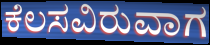
ಕೆಲಸವಿರುವಾಗ